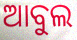
ଆବୁଲ